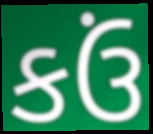
કઉં